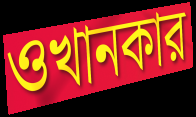
ওখানকার